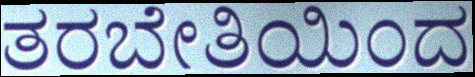
ತರಬೇತಿಯಿಂದ